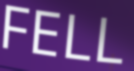
FELL